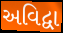
અવિદ્વા